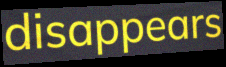
disappears